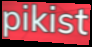
pikist